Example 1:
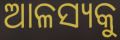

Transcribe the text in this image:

ଆଳସ୍ୟକୁ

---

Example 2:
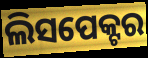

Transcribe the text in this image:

ଲିସପେକ୍ଟର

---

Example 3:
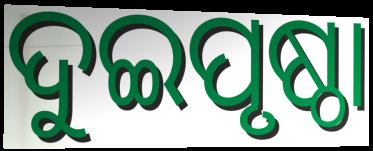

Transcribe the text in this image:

ଦୁଇପୃଷ୍ଠା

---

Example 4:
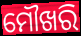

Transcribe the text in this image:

ମୌଖରି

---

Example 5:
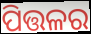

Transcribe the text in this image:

ପିତ୍ତଳର